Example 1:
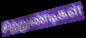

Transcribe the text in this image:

சிற்றுண்டிகள்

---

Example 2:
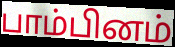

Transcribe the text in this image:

பாம்பினம்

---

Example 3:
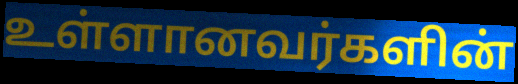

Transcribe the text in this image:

உள்ளானவர்களின்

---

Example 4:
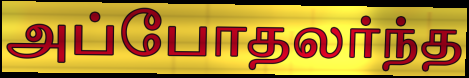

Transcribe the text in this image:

அப்போதலர்ந்த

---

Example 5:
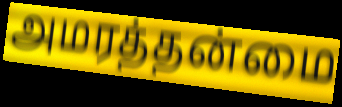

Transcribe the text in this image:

அமரத்தன்மை